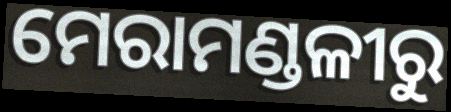
ମେରାମଣ୍ଡଳୀରୁ